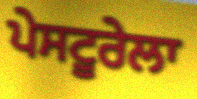
ਪੇਸਟੂਰੇਲਾ